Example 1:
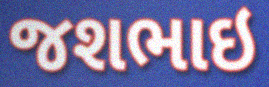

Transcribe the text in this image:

જશભાઇ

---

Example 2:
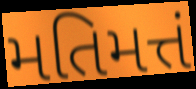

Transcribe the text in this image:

મતિમત્તં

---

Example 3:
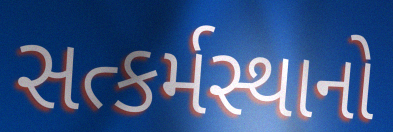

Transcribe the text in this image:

સત્કર્મસ્થાનો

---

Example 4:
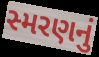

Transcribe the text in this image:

સ્મરણનું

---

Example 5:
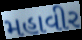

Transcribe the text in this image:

મહાવીર